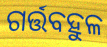
ଗର୍ତ୍ତବହୁଳ